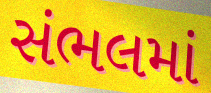
સંભલમાં